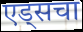
एड्सचा